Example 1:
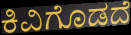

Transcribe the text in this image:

ಕಿವಿಗೊಡದೆ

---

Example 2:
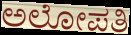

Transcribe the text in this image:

ಅಲೋಪತಿ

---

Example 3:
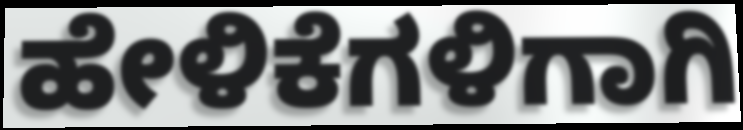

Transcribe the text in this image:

ಹೇಳಿಕೆಗಳಿಗಾಗಿ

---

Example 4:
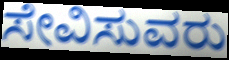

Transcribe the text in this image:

ಸೇವಿಸುವರು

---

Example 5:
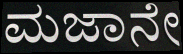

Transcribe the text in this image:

ಮಜಾನೇ